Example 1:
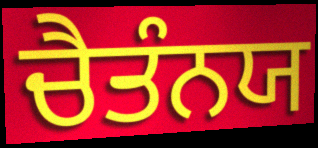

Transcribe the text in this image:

ਚੈਤੰਨਯ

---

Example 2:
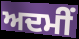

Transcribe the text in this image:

ਅਦਮੀਂ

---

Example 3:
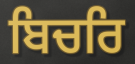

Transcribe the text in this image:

ਬਿਚਰਿ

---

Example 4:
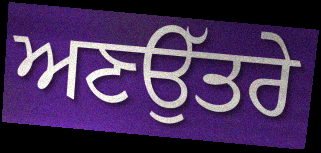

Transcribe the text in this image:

ਅਣਉੱਤਰੇ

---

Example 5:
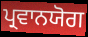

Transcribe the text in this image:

ਪ੍ਰਵਾਨਯੋਗ